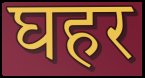
घहर